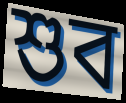
শুব